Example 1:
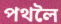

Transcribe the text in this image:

পথলৈ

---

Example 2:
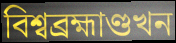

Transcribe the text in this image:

বিশ্বব্ৰহ্মাণ্ডখন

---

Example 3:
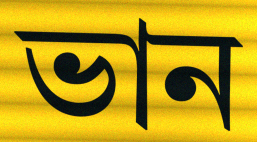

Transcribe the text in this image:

ভান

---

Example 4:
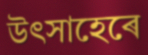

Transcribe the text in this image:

উৎসাহেৰে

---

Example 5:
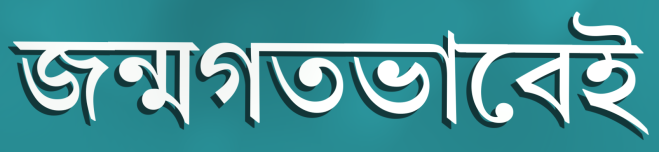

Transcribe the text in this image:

জন্মগতভাবেই